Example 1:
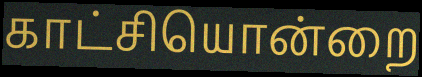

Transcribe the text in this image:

காட்சியொன்றை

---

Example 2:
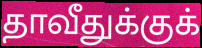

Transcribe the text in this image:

தாவீதுக்குக்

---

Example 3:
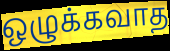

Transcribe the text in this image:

ஒழுக்கவாத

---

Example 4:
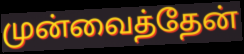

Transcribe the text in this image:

முன்வைத்தேன்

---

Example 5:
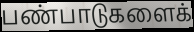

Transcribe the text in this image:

பண்பாடுகளைக்